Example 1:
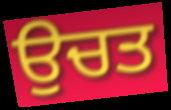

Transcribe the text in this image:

ਉਚਤ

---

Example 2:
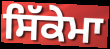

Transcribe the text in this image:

ਸਿੱਕੇਮਾ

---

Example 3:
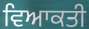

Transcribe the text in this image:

ਵਿਆਕਤੀ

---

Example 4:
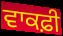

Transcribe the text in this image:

ਵਾਕਫ਼ੀ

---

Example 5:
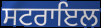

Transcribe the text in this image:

ਸਟਰਾਇਲ